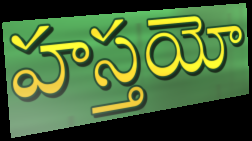
హస్తయో